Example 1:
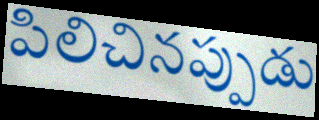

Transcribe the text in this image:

పిలిచినప్పుడు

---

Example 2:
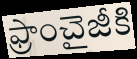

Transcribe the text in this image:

ఫ్రాంచైజీకి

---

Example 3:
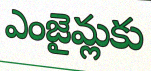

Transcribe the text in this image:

ఎంజైమ్లకు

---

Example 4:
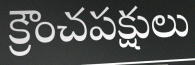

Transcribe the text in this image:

క్రౌంచపక్షులు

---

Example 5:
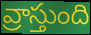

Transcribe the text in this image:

వ్రాస్తుంది